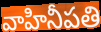
వాహినీపతి